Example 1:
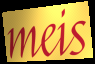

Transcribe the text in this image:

meis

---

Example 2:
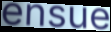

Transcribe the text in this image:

ensue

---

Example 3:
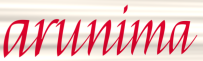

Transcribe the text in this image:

arunima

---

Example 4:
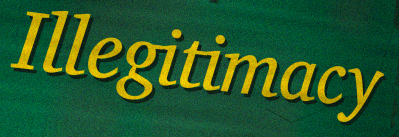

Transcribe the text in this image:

Illegitimacy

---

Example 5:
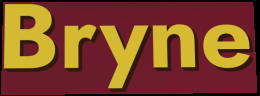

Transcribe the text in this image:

Bryne